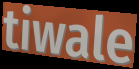
tiwale